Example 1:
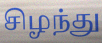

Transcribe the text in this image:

சிழந்து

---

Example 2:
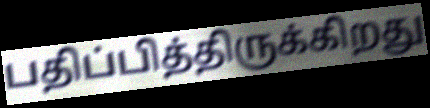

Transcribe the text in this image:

பதிப்பித்திருக்கிறது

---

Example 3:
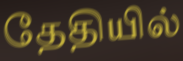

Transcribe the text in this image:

தேதியில்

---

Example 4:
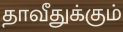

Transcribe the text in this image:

தாவீதுக்கும்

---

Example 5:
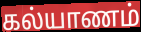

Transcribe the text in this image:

கல்யாணம்